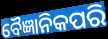
ବୈଜ୍ଞାନିକପରି